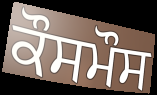
ਕੌਸਮੌਸ